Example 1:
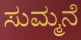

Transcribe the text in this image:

ಸುಮ್ಮನೆ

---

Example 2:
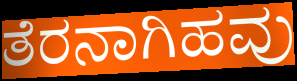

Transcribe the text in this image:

ತೆರನಾಗಿಹವು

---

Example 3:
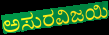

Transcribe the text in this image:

ಅಸುರವಿಜಯಿ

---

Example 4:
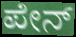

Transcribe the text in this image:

ಪೇನ್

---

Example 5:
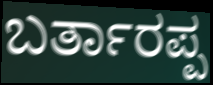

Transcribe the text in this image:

ಬರ್ತಾರಪ್ಪ